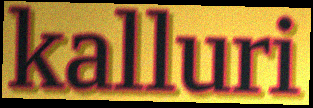
kalluri